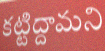
కట్టిద్దామని